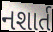
નશાર્ત